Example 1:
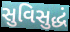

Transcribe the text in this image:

સુવિસુદ્ધં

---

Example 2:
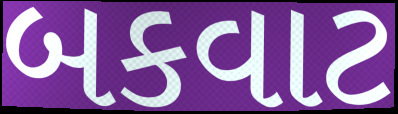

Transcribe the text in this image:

બકવાટ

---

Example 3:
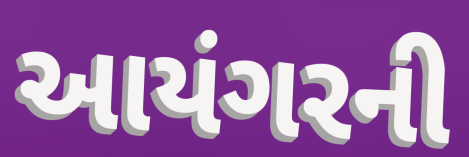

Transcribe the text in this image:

આયંગરની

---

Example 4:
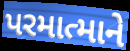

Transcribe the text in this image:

પરમાત્માને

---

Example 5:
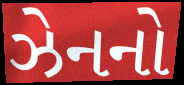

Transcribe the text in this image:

ઝેનનો